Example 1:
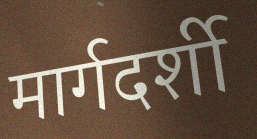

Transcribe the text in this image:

मार्गदर्शी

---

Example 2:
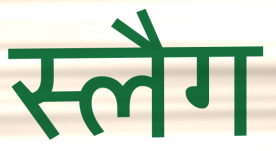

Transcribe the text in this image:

स्लैग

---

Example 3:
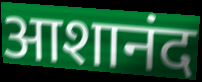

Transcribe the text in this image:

आशानंद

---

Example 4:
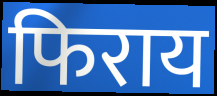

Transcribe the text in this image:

फिराय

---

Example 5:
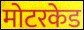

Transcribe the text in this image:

मोटरकेड